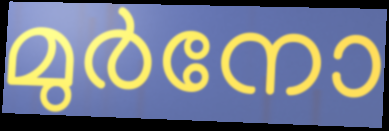
മുർനോ